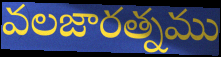
వలజారత్నము